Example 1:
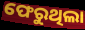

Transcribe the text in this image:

ଫେରୁଥିଲା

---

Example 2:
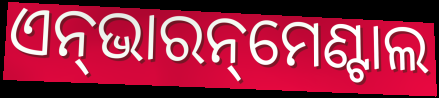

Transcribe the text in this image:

ଏନ୍‌ଭାରନ୍‌ମେଣ୍ଟାଲ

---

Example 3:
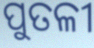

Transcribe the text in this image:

ପୁତଳୀ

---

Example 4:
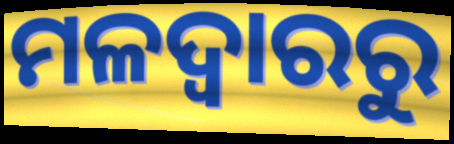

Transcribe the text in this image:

ମଳଦ୍ୱାରରୁ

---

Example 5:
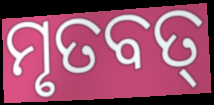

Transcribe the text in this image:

ମୃତବତ୍